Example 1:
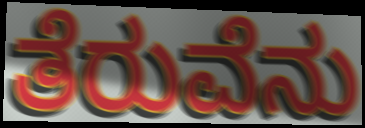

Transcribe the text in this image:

ತೆರುವೆನು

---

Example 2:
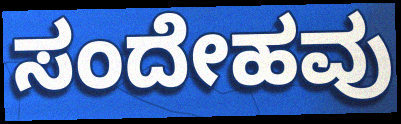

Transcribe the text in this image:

ಸಂದೇಹವು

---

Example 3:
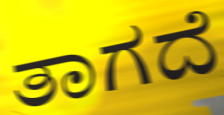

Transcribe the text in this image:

ತಾಗದೆ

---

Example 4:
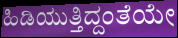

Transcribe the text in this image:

ಹಿಡಿಯುತ್ತಿದ್ದಂತೆಯೇ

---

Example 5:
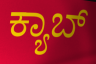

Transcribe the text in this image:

ಕ್ಯಾಬ್